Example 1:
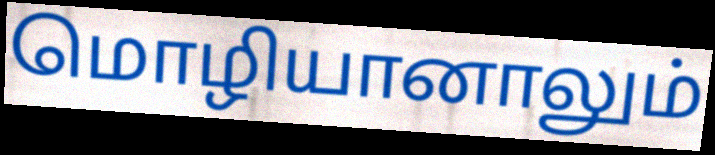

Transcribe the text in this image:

மொழியானாலும்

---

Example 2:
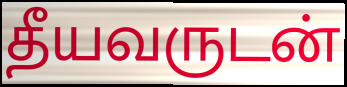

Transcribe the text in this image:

தீயவருடன்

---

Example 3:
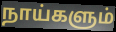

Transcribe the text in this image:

நாய்களும்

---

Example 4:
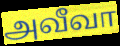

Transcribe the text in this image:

அவீவா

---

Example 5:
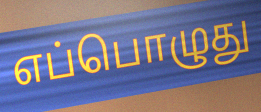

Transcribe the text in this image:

எப்பொழுது